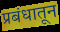
प्रबंधातून